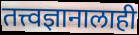
तत्त्वज्ञानालाही